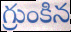
గ్రుంకిన